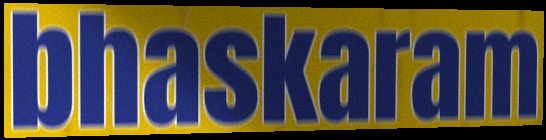
bhaskaram